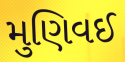
મુણિવઈ